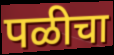
पळीचा